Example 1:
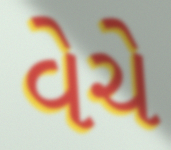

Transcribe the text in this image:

વેચે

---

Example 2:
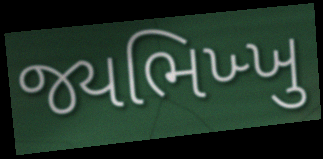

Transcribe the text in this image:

જ્યભિખ્ખુ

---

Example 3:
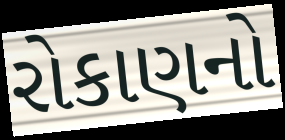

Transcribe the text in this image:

રોકાણનો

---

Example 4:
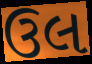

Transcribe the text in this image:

ઉલ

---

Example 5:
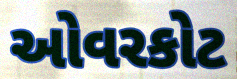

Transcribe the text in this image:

ઓવરકોટ